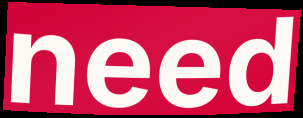
need